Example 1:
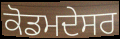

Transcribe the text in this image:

ਕੋਡਮਦੇਸਰ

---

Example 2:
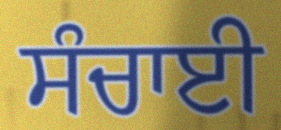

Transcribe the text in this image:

ਸੰਚਾਈ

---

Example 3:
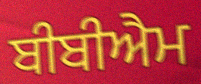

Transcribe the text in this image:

ਬੀਬੀਐਮ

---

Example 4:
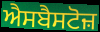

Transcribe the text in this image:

ਐਸਬੈਸਟੋਜ਼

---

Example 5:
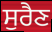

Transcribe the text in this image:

ਸੁਰੈਣ